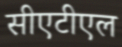
सीएटीएल